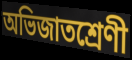
অভিজাতশ্রেণী